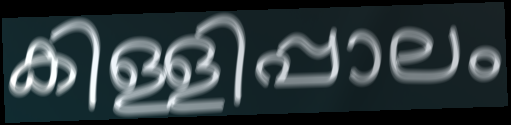
കിള്ളിപ്പാലം